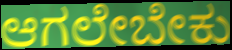
ಆಗಲೇಬೇಕು